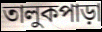
তালুকপাড়া